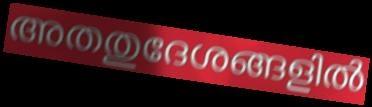
അതതുദേശങ്ങളിൽ